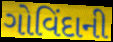
ગોવિંદાની